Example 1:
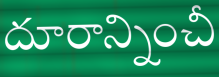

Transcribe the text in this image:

దూరాన్నించీ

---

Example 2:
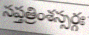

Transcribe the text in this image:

సప్తత్రింశస్సర్గః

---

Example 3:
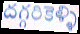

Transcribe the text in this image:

దగ్గరికెళ్ళి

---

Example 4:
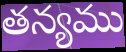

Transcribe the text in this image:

తన్యము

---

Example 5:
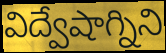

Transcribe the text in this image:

విద్వేషాగ్నిని